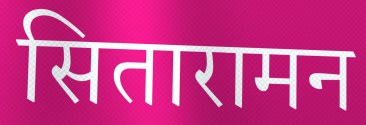
सितारामन